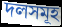
দলসমূহ